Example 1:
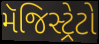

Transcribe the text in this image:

મૅજિસ્ટ્રેટો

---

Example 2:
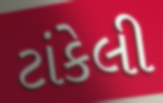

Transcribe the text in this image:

ટાંકેલી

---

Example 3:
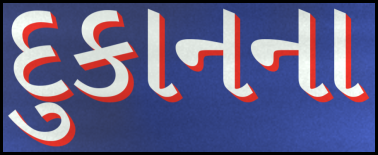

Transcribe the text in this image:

દુકાનના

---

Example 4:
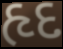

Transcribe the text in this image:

હૃદ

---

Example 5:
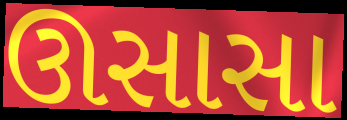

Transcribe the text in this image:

ઊસાસા